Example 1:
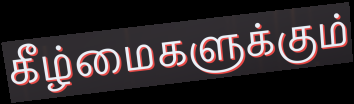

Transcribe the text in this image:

கீழ்மைகளுக்கும்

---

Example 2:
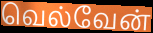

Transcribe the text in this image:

வெல்வேன்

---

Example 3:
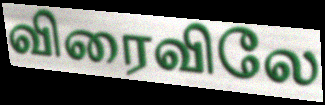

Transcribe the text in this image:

விரைவிலே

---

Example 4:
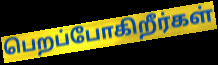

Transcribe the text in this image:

பெறப்போகிறீர்கள்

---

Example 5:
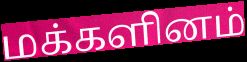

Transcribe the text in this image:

மக்களினம்